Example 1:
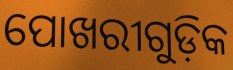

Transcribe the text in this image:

ପୋଖରୀଗୁଡ଼ିକ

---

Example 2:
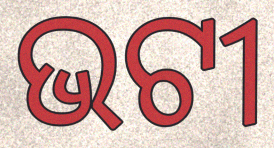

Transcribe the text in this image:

ଭଟୀ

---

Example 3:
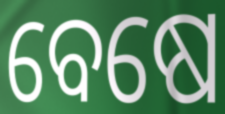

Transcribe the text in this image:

ବେଷେ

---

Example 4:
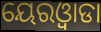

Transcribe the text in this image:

ୟେରଓ୍ୱାଡା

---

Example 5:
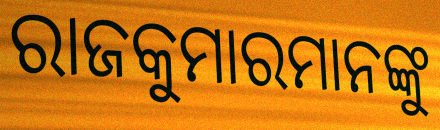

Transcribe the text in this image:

ରାଜକୁମାରମାନଙ୍କୁ